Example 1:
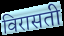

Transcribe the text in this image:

विरासती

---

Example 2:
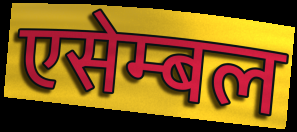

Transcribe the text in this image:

एसेम्बल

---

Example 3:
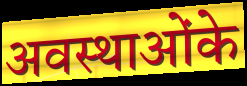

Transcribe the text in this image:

अवस्थाओंके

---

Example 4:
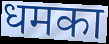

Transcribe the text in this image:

धमका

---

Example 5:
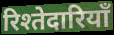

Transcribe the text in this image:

रिश्तेदारियाँ